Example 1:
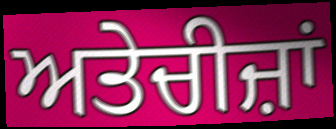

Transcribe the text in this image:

ਅਤੇਚੀਜ਼ਾਂ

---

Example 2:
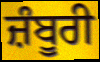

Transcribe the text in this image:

ਜ਼ੰਬੂਰੀ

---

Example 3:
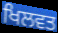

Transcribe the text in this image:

ਖਿਲਵਤ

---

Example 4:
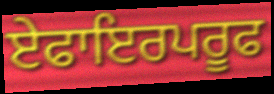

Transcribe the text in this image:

ਏਫਾਇਰਪਰੂਫ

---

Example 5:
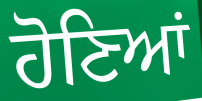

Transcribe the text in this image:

ਹੋਣਿਆਂ